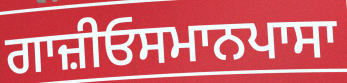
ਗਾਜ਼ੀਓਸਮਾਨਪਾਸਾ